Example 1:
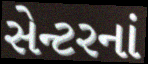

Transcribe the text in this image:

સેન્ટરનાં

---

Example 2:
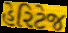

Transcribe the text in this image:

હેરિટેજ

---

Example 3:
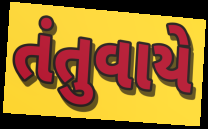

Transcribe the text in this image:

તંતુવાયે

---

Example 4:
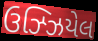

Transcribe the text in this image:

ઉઝ્ઝિયેલ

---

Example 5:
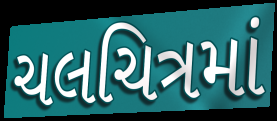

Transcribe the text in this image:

ચલચિત્રમાં